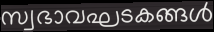
സ്വഭാവഘടകങ്ങൾ